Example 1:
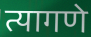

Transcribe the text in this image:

त्यागणे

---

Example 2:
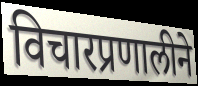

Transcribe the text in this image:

विचारप्रणालीने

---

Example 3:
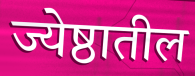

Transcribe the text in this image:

ज्येष्ठातील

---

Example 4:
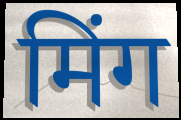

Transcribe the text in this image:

मिंग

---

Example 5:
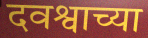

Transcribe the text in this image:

दवश्वाच्या